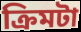
ক্রিমটা